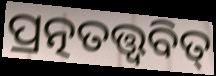
ପ୍ରତ୍ନତତ୍ତ୍ଵବିତ୍